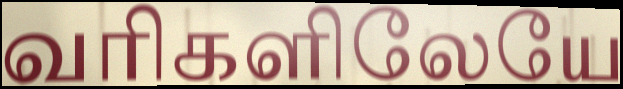
வரிகளிலேயே